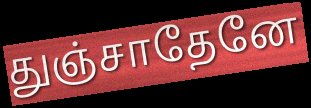
துஞ்சாதேனே